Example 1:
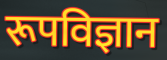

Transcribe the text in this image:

रूपविज्ञान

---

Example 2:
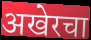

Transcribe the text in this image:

अखेरचा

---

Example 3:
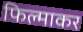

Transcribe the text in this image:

फिल्माकर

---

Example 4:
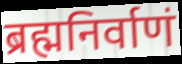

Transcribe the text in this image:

ब्रह्मनिर्वाणं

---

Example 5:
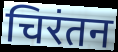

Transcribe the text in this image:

चिरंतन